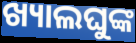
ଖ୍ୟାଲଘୁଙ୍କ